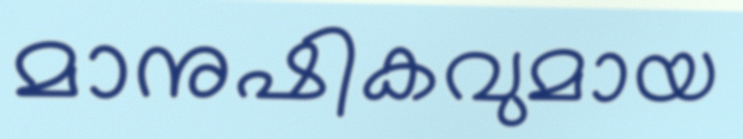
മാനുഷികവുമായ